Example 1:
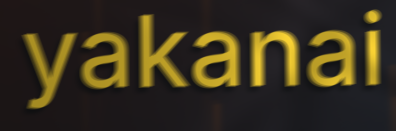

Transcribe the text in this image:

yakanai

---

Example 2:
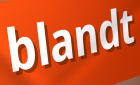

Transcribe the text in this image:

blandt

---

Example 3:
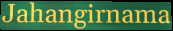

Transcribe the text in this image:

Jahangirnama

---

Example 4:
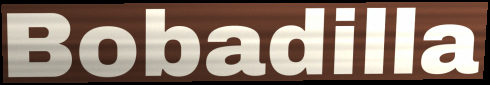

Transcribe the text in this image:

Bobadilla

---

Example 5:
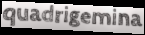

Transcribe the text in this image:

quadrigemina